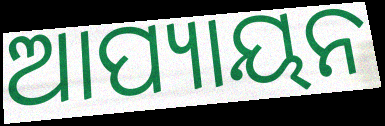
ଆପ୍ୟାୟନ